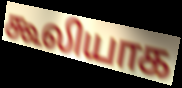
கூலியாக